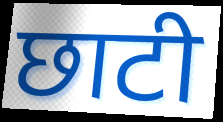
छाटी